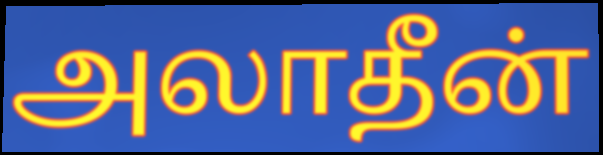
அலாதீன்